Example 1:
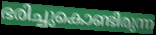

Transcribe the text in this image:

ഭരിച്ചുകൊണ്ടിരുന്ന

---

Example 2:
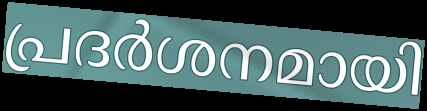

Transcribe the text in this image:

പ്രദർശനമായി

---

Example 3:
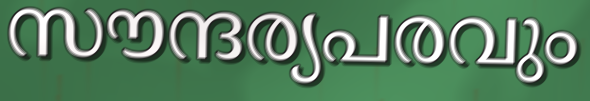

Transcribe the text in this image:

സൗന്ദര്യപരവും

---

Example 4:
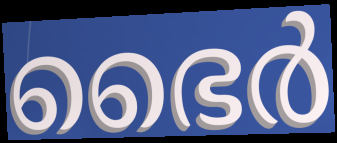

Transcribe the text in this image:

ഭൈർ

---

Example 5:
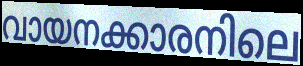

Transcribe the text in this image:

വായനക്കാരനിലെ